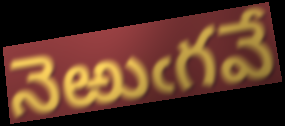
నెఱుఁగవే